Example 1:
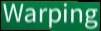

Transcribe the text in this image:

Warping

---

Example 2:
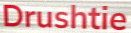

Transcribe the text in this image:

Drushtie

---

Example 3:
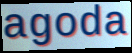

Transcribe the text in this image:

agoda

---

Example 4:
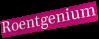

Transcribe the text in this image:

Roentgenium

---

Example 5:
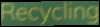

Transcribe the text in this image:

Recycling